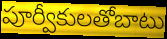
పూర్వీకులతోబాటు